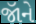
જૉને